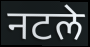
नटले